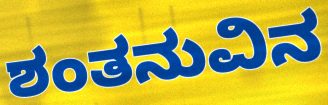
ಶಂತನುವಿನ